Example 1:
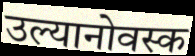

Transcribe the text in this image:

उल्यानोवस्क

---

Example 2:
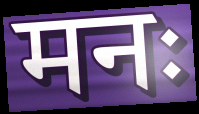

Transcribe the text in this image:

मनः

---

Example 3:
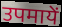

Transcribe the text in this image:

उपमायें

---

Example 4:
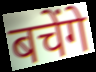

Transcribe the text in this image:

बचेंगे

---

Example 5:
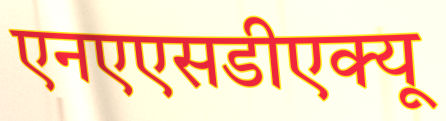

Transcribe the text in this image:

एनएएसडीएक्यू